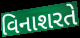
વિનાશરતે